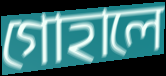
গোহালে